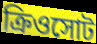
ক্রিওসোট